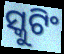
ସ୍କୁଟିଂ